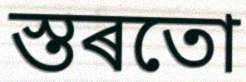
স্তৰতো